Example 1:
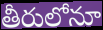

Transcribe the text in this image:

తీరులోనూ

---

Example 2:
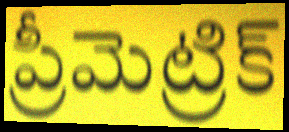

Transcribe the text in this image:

ప్రీమెట్రిక్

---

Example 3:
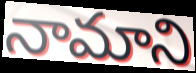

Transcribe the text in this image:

నామాని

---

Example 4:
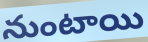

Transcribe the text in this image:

నుంటాయి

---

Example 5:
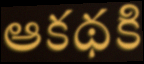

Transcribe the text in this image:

ఆకథకి